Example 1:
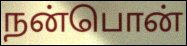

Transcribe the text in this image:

நன்பொன்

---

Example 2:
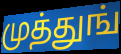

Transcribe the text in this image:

முத்துங்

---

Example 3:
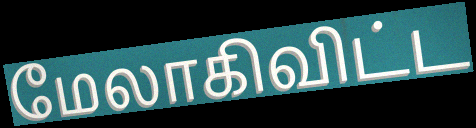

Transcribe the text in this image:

மேலாகிவிட்ட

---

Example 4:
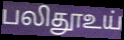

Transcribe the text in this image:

பலிதூஉய்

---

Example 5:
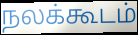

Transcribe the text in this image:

நலக்கூடம்